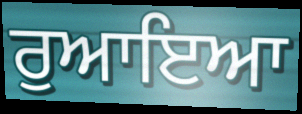
ਰੁਆਇਆ